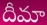
దీమా